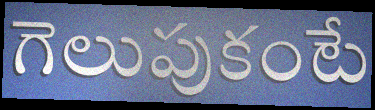
గెలుపుకంటే